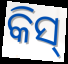
କିସ୍